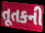
તૂતકની